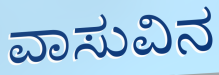
ವಾಸುವಿನ